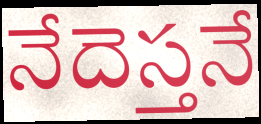
నేదెస్తనే